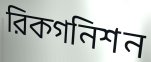
রিকগনিশন